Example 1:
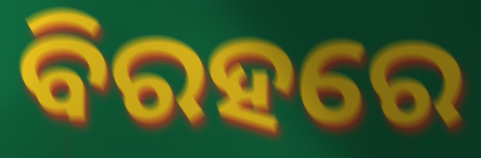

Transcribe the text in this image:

ବିରହରେ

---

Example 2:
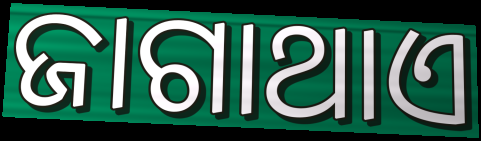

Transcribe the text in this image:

ଜାଗାଥାଏ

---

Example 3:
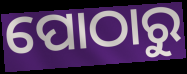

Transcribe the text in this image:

ପୋଠାରୁ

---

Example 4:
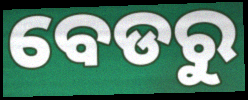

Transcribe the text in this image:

ବେଡରୁ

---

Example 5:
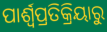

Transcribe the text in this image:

ପାର୍ଶ୍ୱପ୍ରତିକ୍ରିୟାରୁ